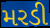
મરડી